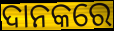
ଦାନକରେ